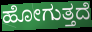
ಹೋಗುತ್ತದೆ